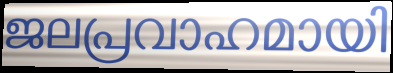
ജലപ്രവാഹമായി